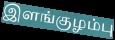
இளங்குழம்பு